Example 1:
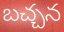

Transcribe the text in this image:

బచ్చన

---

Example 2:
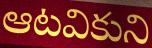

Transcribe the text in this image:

ఆటవికుని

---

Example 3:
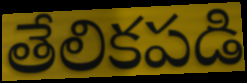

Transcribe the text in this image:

తేలికపడి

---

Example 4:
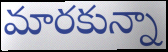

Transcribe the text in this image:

మారకున్నా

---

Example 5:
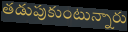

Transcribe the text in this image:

తడుపుకుంటున్నారు